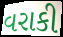
વરાકી